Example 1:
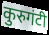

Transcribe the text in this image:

कुरुगंटी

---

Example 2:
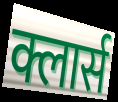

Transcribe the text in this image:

क्लार्स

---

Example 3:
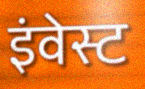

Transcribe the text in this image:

इंवेस्ट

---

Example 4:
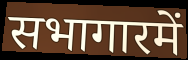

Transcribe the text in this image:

सभागारमें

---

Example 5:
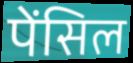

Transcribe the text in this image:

पेंसिल